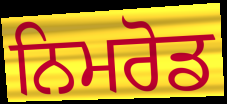
ਨਿਮਰੋਡ